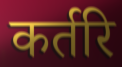
कर्तरि